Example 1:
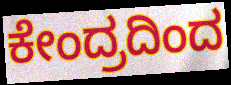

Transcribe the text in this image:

ಕೇಂದ್ರದಿಂದ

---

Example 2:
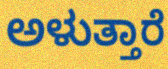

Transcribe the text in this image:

ಅಳುತ್ತಾರೆ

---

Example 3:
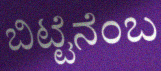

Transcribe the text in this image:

ಬಿಟ್ಟೆನೆಂಬ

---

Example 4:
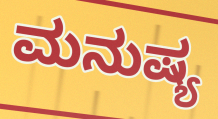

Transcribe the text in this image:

ಮನುಷ್ಯ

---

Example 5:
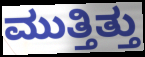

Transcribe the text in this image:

ಮುತ್ತಿತ್ತು